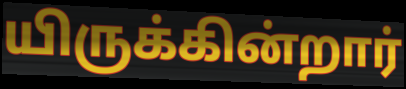
யிருக்கின்றார்